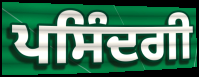
ਪਸਿੰਦਗੀ